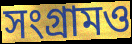
সংগ্রামও